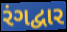
રંગદ્વાર